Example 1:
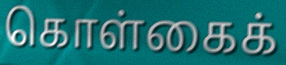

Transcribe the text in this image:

கொள்கைக்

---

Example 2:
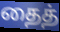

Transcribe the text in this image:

தைத்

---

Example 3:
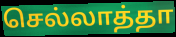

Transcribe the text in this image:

செல்லாத்தா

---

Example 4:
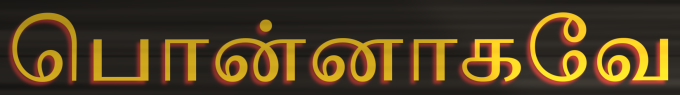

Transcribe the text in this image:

பொன்னாகவே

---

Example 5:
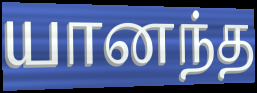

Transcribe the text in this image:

யானந்த